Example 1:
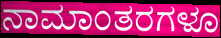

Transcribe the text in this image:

ನಾಮಾಂತರಗಳೂ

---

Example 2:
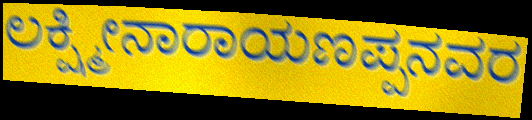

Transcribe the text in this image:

ಲಕ್ಷ್ಮೀನಾರಾಯಣಪ್ಪನವರ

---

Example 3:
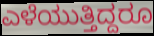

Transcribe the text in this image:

ಎಳೆಯುತ್ತಿದ್ದರೂ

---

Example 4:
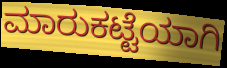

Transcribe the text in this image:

ಮಾರುಕಟ್ಟೆಯಾಗಿ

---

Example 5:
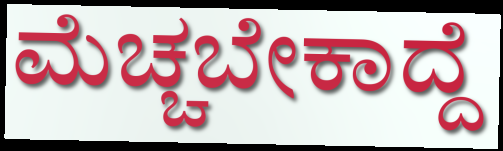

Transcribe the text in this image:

ಮೆಚ್ಚಬೇಕಾದ್ದೆ